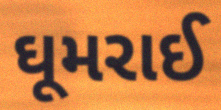
ઘૂમરાઈ